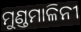
ମୁଣ୍ଡମାଳିନୀ